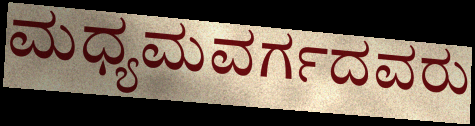
ಮಧ್ಯಮವರ್ಗದವರು